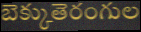
బెక్కుతెరంగుల